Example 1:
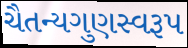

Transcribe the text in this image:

ચૈતન્યગુણસ્વરૂપ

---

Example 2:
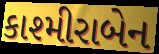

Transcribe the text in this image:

કાશ્મીરાબેન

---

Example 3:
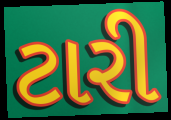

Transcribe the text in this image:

ટારી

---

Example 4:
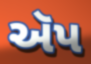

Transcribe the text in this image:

ઍપ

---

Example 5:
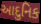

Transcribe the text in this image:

આદુનિક